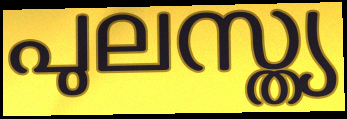
പുലസ്ത്യ